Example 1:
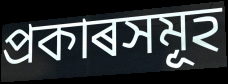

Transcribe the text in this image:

প্ৰকাৰসমূহ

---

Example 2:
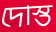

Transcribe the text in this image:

দোস্ত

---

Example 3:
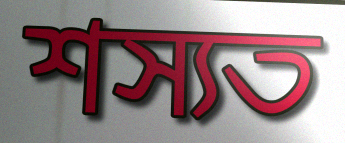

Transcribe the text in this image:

শস্যত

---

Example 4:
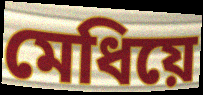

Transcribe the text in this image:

মেধিয়ে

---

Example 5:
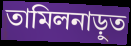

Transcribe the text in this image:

তামিলনাড়ুত